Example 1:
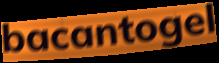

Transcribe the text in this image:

bacantogel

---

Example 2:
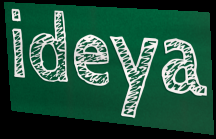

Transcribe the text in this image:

ideya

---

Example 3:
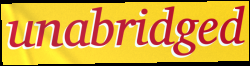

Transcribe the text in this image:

unabridged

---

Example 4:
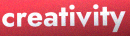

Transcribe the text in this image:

creativity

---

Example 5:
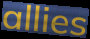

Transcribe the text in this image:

allies